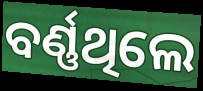
ବର୍ଣ୍ଣଥିଲେ